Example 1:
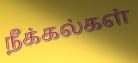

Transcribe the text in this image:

நீக்கல்கள்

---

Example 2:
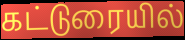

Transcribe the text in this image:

கட்டுரையில்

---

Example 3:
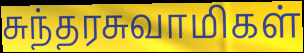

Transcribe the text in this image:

சுந்தரசுவாமிகள்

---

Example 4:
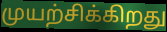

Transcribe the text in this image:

முயற்சிக்கிறது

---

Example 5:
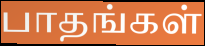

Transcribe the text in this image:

பாதங்கள்